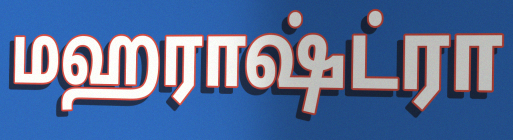
மஹராஷ்ட்ரா